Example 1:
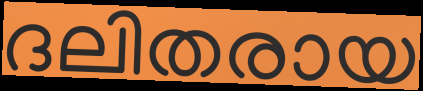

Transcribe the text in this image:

ദലിതരായ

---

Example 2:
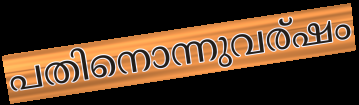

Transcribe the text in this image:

പതിനൊന്നുവര്ഷം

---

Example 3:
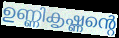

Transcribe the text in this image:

ഉണ്ണികൃഷ്ണന്റെ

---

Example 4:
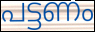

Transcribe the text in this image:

പട്ടണം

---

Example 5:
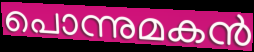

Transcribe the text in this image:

പൊന്നുമകൻ